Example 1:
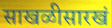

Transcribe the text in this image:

साखळीसारखं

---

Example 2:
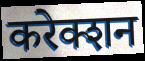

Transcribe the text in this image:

करेक्शन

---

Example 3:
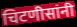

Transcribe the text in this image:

चिटणीसांनी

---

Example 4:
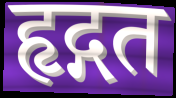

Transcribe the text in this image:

हृद्गत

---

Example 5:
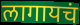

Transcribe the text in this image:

लागायचं